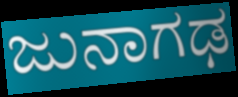
ಜುನಾಗಢ